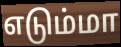
எடும்மா